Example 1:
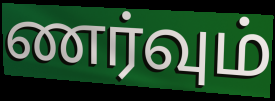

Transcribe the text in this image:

ணர்வும்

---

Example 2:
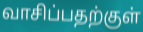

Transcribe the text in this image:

வாசிப்பதற்குள்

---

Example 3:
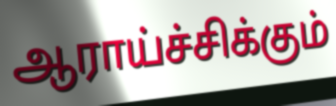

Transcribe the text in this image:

ஆராய்ச்சிக்கும்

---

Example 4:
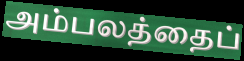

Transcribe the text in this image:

அம்பலத்தைப்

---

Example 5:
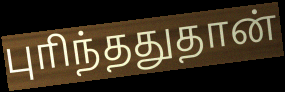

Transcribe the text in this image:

புரிந்ததுதான்